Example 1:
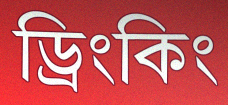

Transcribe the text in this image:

ড্রিংকিং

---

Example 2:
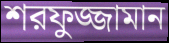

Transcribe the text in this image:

শরফুজ্জামান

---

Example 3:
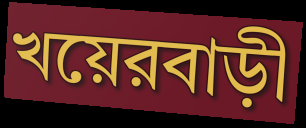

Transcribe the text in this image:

খয়েরবাড়ী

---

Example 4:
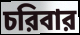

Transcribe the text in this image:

চরিবার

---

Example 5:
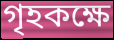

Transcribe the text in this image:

গৃহকক্ষে